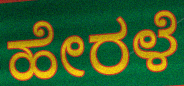
ಹೇರಳೆ